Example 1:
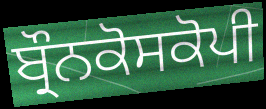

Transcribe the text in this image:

ਬ੍ਰੌਨਕੋਸਕੋਪੀ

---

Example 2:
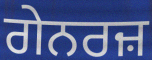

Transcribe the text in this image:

ਗੇਨਰਜ਼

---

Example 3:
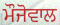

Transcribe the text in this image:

ਮੌਜੋਵਾਲ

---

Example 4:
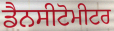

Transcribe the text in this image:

ਡੈਨਸੀਟੋਮੀਟਰ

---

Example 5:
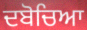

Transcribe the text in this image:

ਦਬੋਚਿਆ